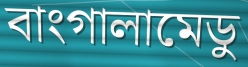
বাংগালামেডু